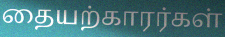
தையற்காரர்கள்